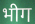
भीग